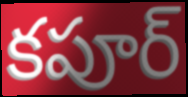
కపూర్